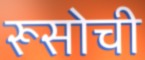
रूसोची